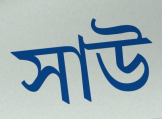
সাউ